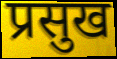
प्रसुख